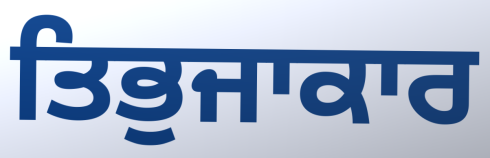
ਤਿਭੁਜਾਕਾਰ